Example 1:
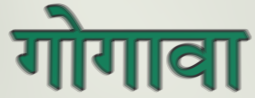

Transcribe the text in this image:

गोगावा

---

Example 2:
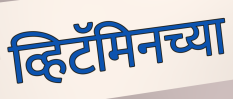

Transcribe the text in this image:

व्हिटॅमिनच्या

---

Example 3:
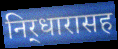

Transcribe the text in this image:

निर्धारासह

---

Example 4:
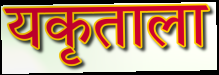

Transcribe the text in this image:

यकृताला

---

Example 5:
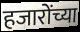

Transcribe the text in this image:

हजारोंच्या